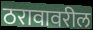
ठरावावरील